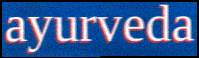
ayurveda